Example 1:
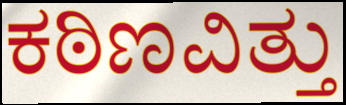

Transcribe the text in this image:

ಕಠಿಣವಿತ್ತು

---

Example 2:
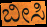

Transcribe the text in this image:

ಬೀಸಿ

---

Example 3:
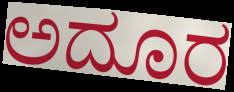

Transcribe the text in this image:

ಅದೂರ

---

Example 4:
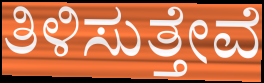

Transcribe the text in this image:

ತಿಳಿಸುತ್ತೇವೆ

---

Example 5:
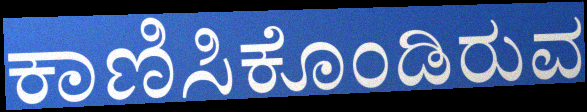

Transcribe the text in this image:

ಕಾಣಿಸಿಕೊಂಡಿರುವ